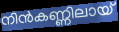
നിൻകണ്ണിലായ്